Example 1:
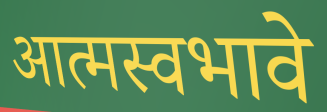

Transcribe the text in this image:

आत्मस्वभावे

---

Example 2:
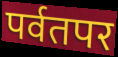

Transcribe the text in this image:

पर्वतपर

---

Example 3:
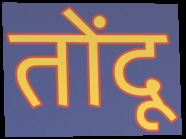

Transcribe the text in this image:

तोंदू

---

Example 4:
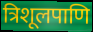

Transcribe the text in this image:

त्रिशूलपाणि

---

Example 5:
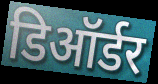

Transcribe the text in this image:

डिऑर्डर